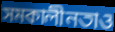
সমকালীনতাও